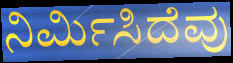
ನಿರ್ಮಿಸಿದೆವು